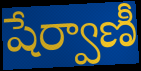
షేర్వాణీ